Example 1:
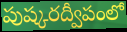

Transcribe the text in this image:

పుష్కరద్వీపంలో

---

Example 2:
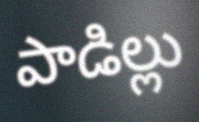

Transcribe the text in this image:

పాడిల్లు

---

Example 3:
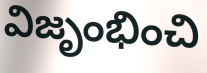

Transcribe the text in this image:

విజృంభించి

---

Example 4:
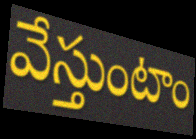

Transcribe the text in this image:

వేస్తుంటాం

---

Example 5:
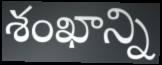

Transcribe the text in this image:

శంఖాన్ని